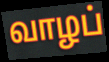
வாழப்